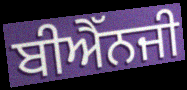
ਬੀਐੱਨਜੀ